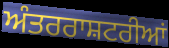
ਅੰਤਰਰਾਸ਼ਟਰੀਆਂ